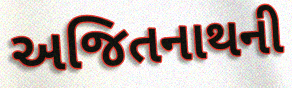
અજિતનાથની